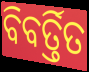
ବିବର୍ତ୍ତିତ